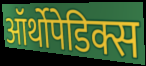
ऑर्थोपेडिक्स